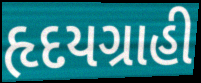
હૃદયગ્રાહી